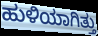
ಹುಳಿಯಾಗಿತ್ತು